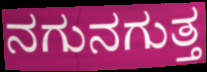
ನಗುನಗುತ್ತ